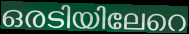
ഒരടിയിലേറെ